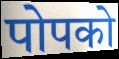
पोपको